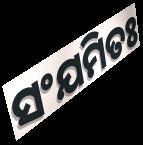
ସଂଯମିତଃ